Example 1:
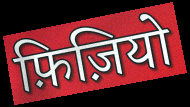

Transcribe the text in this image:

फ़िज़ियो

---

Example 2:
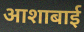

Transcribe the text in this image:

आशाबाई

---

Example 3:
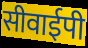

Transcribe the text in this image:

सीवाईपी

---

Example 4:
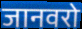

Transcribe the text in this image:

जानवरो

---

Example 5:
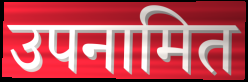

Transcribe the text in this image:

उपनामित